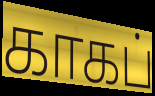
காகப்